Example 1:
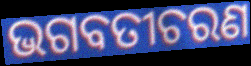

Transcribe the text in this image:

ଭଗବତୀଚରଣ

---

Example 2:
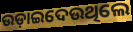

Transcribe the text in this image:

ଉଡ଼ାଇଦେଉଥିଲେ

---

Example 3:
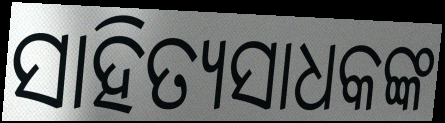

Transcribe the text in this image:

ସାହିତ୍ୟସାଧକଙ୍କ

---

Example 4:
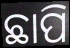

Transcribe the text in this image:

ଛାପି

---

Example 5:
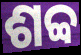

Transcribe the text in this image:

ଶବ୍ବ